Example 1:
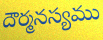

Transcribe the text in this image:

దౌర్మనస్యము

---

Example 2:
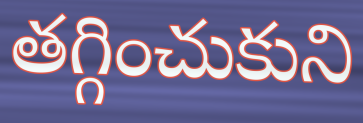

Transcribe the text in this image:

తగ్గించుకుని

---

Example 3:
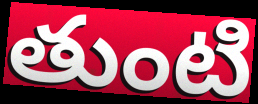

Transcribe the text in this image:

తుంటి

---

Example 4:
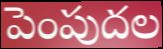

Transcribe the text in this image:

పెంపుదల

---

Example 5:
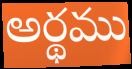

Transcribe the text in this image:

అర్థము